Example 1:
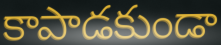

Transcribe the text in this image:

కాపాడకుండా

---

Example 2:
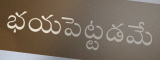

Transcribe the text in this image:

భయపెట్టడమే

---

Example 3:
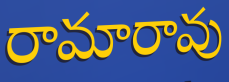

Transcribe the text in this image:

రామారావు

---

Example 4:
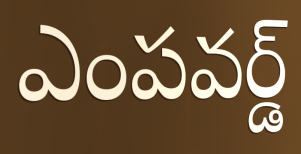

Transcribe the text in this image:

ఎంపవర్డ్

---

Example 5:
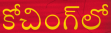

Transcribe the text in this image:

కోచింగ్‌లో